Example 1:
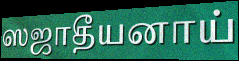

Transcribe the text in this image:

ஸஜாதீயனாய்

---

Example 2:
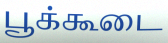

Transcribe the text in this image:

பூக்கூடை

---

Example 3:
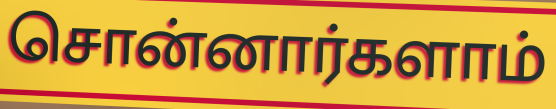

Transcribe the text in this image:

சொன்னார்களாம்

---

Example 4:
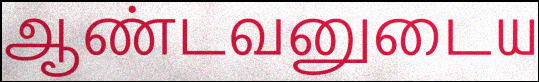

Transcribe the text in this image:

ஆண்டவனுடைய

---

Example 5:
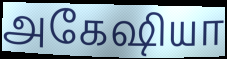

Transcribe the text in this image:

அகேஷியா